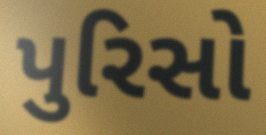
પુરિસો